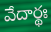
వేదార్థః